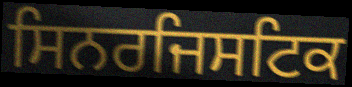
ਸਿਨਰਜਿਸਟਿਕ